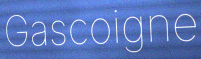
Gascoigne